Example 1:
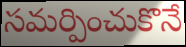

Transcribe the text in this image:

సమర్పించుకొనే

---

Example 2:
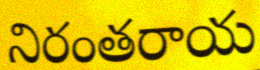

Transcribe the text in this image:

నిరంతరాయ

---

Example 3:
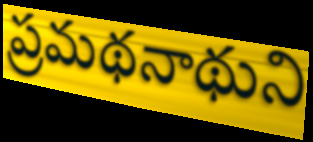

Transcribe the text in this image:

ప్రమథనాథుని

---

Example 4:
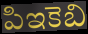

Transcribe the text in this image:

పిఇకెబి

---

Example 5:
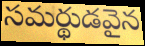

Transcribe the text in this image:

సమర్థుడవైన